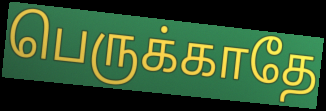
பெருக்காதே